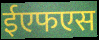
ईएफएस